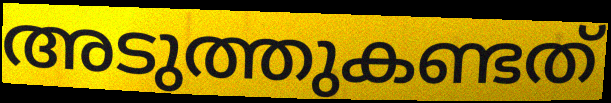
അടുത്തുകണ്ടത്